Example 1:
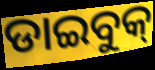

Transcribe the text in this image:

ଡାଇବୁକ୍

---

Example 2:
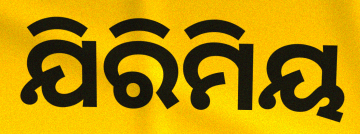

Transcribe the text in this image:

ଯିରିମିୟ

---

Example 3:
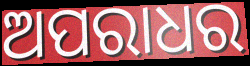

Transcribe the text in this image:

ଅପରାଧର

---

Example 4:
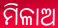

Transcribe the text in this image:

ମିଳାଅ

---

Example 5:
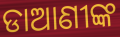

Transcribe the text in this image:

ଡାଆଣୀଙ୍କ